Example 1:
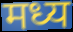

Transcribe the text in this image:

मध्य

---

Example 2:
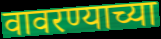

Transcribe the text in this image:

वावरण्याच्या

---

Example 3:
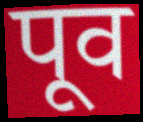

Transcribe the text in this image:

पूव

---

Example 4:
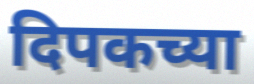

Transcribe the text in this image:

दिपकच्या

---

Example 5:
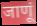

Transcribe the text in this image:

जाणूं